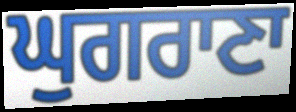
ਘੁਗਰਾਣਾ